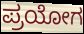
ಪ್ರಯೋಗ